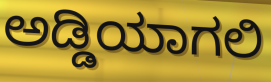
ಅಡ್ಡಿಯಾಗಲಿ